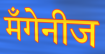
मँगेनीज